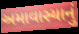
અમાવાસ્યાનું